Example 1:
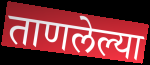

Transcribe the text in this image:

ताणलेल्या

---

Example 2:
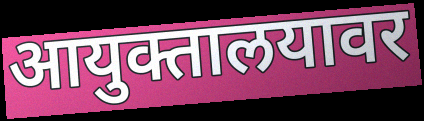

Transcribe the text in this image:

आयुक्तालयावर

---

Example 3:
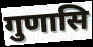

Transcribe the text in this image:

गुणासि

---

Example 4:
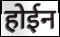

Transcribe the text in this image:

होईन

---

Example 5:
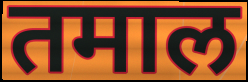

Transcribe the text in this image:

तमाल